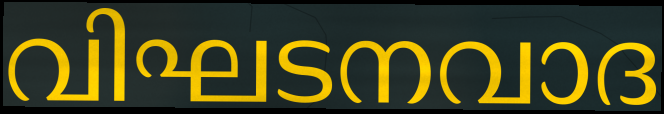
വിഘടനവാദ